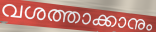
വശത്താക്കാനും